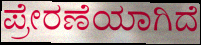
ಪ್ರೇರಣೆಯಾಗಿದೆ